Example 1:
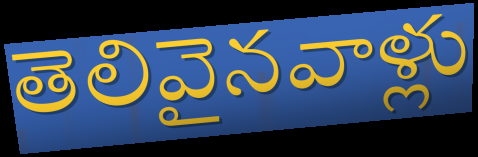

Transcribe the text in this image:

తెలివైనవాళ్లు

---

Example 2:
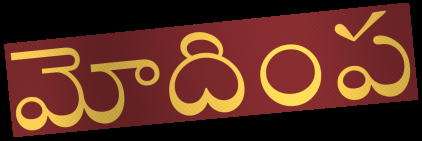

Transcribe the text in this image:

మోదింప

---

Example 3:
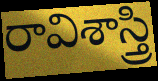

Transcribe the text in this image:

రావిశాస్త్రి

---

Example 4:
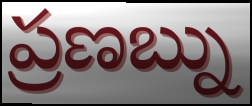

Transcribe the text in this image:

ప్రణబ్ను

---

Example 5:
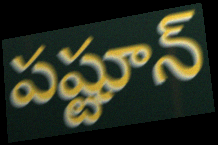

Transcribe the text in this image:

పష్టూన్